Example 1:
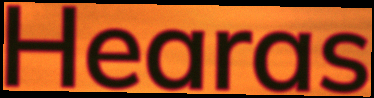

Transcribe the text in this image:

Hearas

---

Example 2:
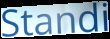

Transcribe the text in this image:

Standi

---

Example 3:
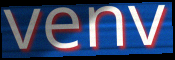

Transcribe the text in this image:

venv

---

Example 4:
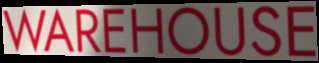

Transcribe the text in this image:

WAREHOUSE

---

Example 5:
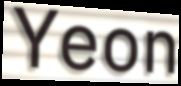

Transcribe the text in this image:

Yeon